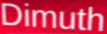
Dimuth